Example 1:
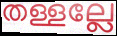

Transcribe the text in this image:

തള്ളല്ലേ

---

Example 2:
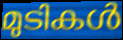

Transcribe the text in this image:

മുടികൾ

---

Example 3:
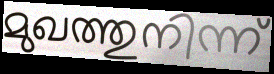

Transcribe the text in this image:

മുഖത്തുനിന്ന്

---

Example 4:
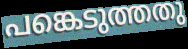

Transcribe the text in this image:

പങ്കെടുത്തതു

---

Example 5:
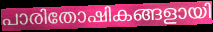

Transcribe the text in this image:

പാരിതോഷികങ്ങളായി